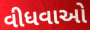
વીધવાઓ